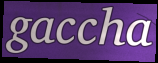
gaccha